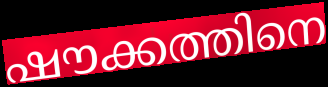
ഷൗക്കത്തിനെ